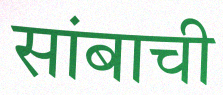
सांबाची